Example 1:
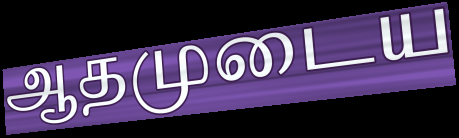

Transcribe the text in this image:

ஆதமுடைய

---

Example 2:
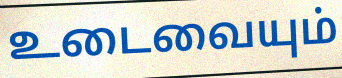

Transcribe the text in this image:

உடைவையும்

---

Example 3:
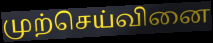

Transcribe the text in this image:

முற்செய்வினை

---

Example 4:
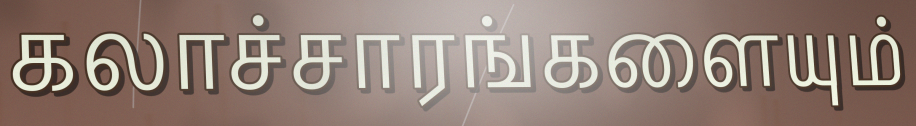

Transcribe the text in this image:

கலாச்சாரங்களையும்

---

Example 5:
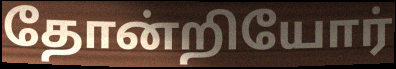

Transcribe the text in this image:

தோன்றியோர்